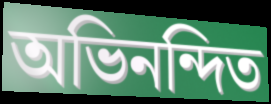
অভিনন্দিত